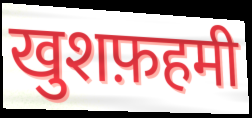
खुशफ़हमी